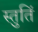
स्तुतिं